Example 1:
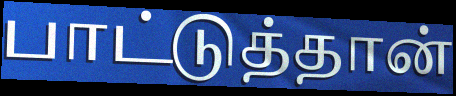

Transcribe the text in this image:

பாட்டுத்தான்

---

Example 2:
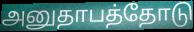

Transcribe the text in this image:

அனுதாபத்தோடு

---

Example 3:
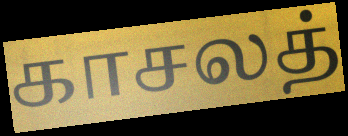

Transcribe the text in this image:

காசலத்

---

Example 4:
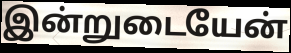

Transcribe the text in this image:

இன்றுடையேன்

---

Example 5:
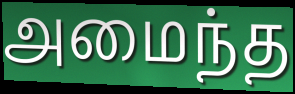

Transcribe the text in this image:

அமைந்த